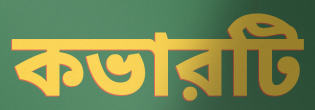
কভারটি